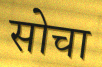
सोचा